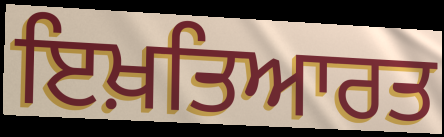
ਇਖ਼ਤਿਆਰਤ